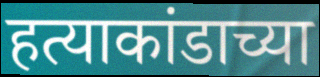
हत्याकांडाच्या